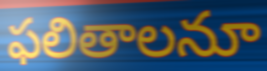
ఫలితాలనూ